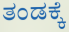
ತಂಡಕ್ಕೆ